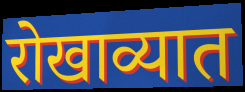
रोखाव्यात